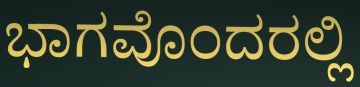
ಭಾಗವೊಂದರಲ್ಲಿ